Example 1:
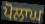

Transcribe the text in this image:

ਪੋਲਾਘ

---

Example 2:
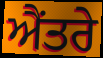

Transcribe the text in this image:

ਐਂਤਰੇ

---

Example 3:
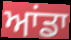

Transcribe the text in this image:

ਆਂਡਾ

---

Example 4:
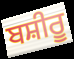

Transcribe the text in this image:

ਬਸ਼ੀਰੂ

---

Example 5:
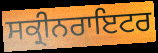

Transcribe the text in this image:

ਸਕ੍ਰੀਨਰਾਇਟਰ